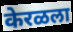
केरळला